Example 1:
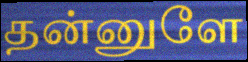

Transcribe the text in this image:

தன்னுளே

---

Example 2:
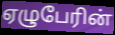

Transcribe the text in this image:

ஏழுபேரின்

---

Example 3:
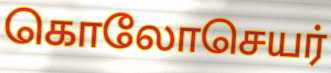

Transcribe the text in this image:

கொலோசெயர்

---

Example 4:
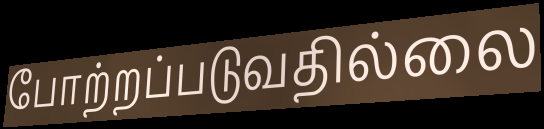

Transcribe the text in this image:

போற்றப்படுவதில்லை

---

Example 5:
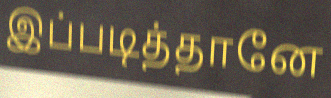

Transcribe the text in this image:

இப்படித்தானே